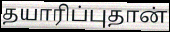
தயாரிப்புதான்